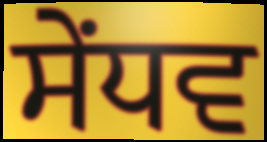
ਸੇਂਧਵ